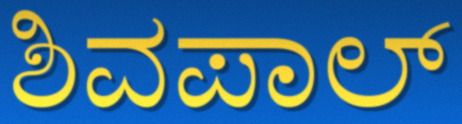
ಶಿವಪಾಲ್